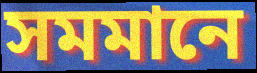
সমমানে